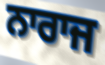
ਨਾਰਾਜ